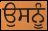
ਉਸਨੂੰ